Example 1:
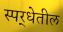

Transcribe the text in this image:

स्पर्धेतील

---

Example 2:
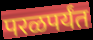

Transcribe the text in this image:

परळपर्यंत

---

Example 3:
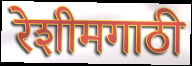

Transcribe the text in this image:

रेशीमगाठी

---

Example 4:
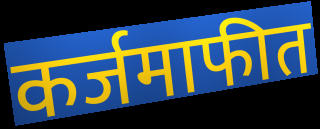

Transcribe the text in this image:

कर्जमाफीत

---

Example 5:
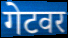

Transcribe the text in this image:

गेटवर